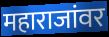
महाराजांवर